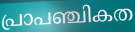
പ്രാപഞ്ചികത